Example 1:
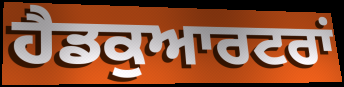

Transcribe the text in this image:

ਹੈਡਕੁਆਰਟਰਾਂ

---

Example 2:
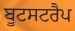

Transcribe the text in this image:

ਬੂਟਸਟਰੈਪ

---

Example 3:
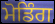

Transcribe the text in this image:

ਮੋਡਿੰਗ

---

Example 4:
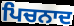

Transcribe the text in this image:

ਪਿਚਨਾਦ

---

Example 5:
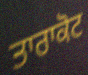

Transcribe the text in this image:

ਤਾਰਾਕੋਟ